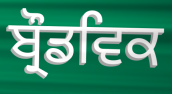
ਬ੍ਰੌਡਵਿਕ